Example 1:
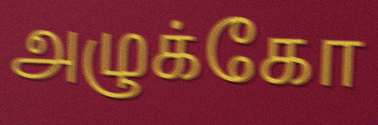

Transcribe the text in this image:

அழுக்கோ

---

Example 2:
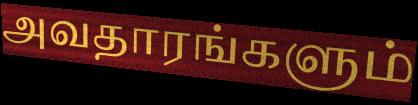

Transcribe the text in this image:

அவதாரங்களும்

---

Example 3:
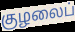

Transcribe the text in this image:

குழலைப்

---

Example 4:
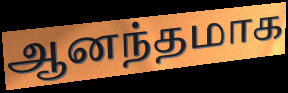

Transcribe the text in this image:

ஆனந்தமாக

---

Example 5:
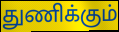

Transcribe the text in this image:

துணிக்கும்